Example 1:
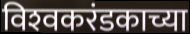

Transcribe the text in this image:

विश्‍वकरंडकाच्या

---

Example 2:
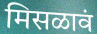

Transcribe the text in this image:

मिसळावं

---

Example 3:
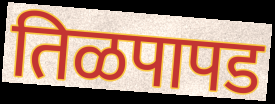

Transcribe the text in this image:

तिळपापड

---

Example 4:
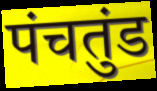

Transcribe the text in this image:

पंचतुंड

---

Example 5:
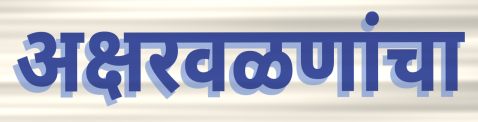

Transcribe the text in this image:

अक्षरवळणांचा